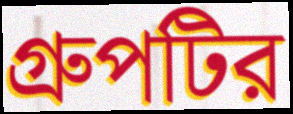
গ্রুপটির